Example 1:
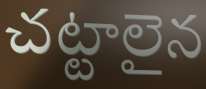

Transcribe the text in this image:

చట్టాలైన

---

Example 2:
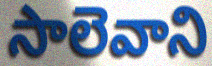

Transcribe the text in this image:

సాలెవాని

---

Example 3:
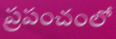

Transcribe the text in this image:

ప్రపంచంలో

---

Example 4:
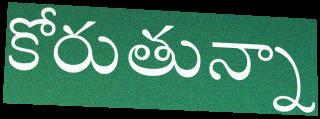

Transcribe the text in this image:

కోరుతున్నా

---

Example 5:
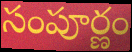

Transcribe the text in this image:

సంపూర్ణం